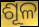
ଶୂଳ